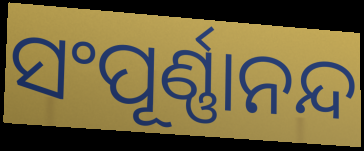
ସଂପୂର୍ଣ୍ଣାନନ୍ଦ